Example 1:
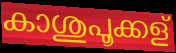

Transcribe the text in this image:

കാശുപൂക്കള്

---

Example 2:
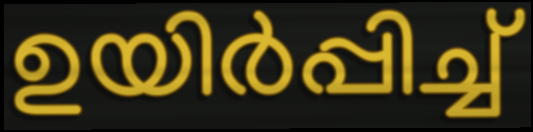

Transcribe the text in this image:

ഉയിർപ്പിച്ച്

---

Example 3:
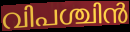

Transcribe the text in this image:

വിപശ്ചിൻ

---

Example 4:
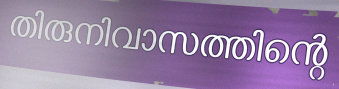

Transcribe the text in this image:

തിരുനിവാസത്തിന്റെ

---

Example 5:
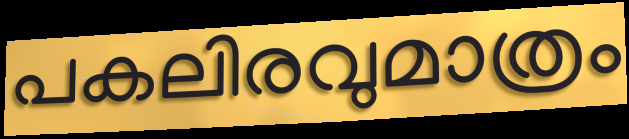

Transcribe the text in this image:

പകലിരവുമാത്രം